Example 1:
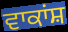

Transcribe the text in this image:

ਵਾਕਾਂਸ਼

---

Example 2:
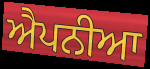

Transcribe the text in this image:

ਐਪਨੀਆ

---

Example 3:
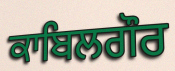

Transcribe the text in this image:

ਕਾਬਿਲਗੌਰ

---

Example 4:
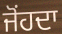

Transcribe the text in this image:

ਜੋਂਹਦਾ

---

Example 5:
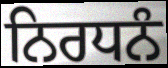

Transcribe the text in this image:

ਨਿਰਧਨੰ